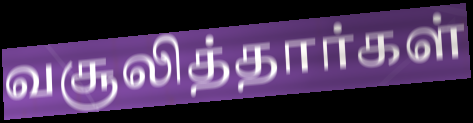
வசூலித்தார்கள்